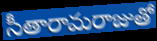
సీతారామరాజుతో